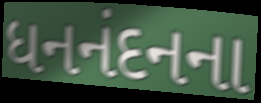
ધનનંદનના